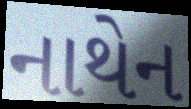
નાથેન